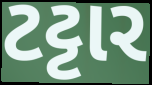
ટટ્ટાર